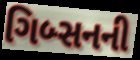
ગિબ્સનની